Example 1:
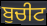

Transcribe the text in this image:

ਬੁਚੀਟ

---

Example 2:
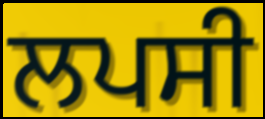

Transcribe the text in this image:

ਲਪਸੀ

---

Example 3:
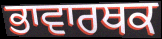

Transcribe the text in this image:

ਭਾਵਾਰਥਕ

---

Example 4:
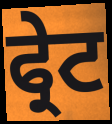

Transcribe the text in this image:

ਫ੍ਰੇਟ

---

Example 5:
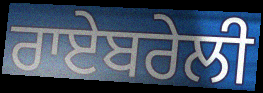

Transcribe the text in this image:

ਰਾਏਬਰੇਲੀ